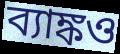
ব্যাঙ্কও